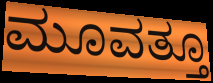
ಮೂವತ್ತೂ